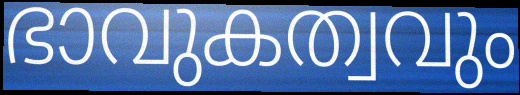
ഭാവുകത്വവും